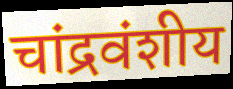
चांद्रवंशीय